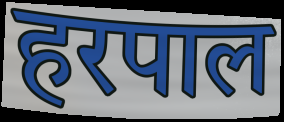
हरपाल